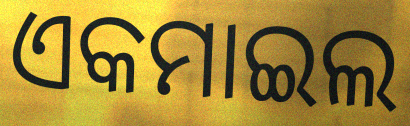
ଏକମାଇଲ